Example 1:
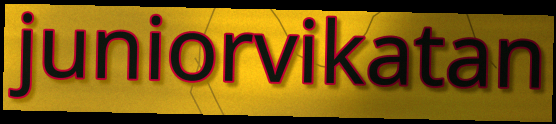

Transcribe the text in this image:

juniorvikatan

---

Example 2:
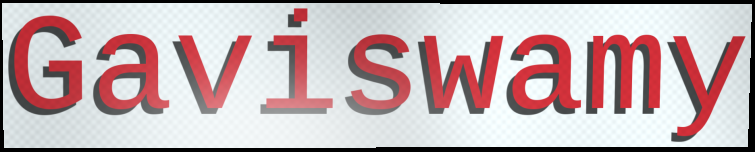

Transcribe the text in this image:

Gaviswamy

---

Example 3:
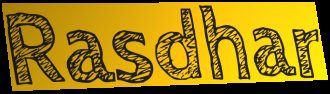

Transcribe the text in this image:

Rasdhar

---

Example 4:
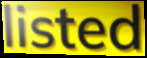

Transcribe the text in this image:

listed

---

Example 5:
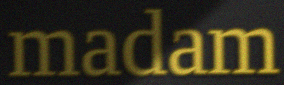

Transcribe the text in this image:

madam